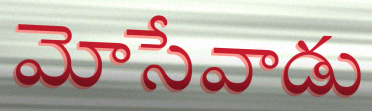
మోసేవాడు